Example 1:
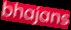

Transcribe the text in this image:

bhajans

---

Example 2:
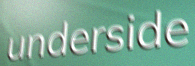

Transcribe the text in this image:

underside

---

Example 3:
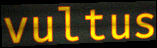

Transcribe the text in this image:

vultus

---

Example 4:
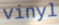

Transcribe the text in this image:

vinyl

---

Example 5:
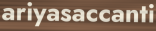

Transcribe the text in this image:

ariyasaccanti